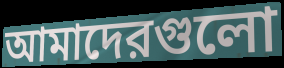
আমাদেরগুলো